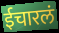
ईचारलं